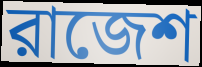
রাজেশ